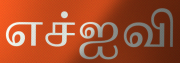
எச்ஐவி